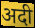
अदी